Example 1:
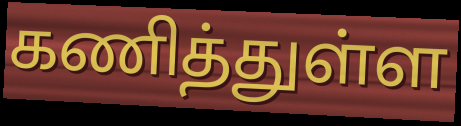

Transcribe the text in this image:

கணித்துள்ள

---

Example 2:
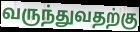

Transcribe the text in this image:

வருந்துவதற்கு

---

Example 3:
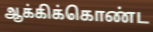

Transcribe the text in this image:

ஆக்கிக்கொண்ட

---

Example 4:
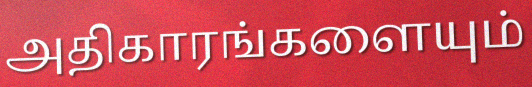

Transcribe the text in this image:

அதிகாரங்களையும்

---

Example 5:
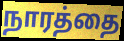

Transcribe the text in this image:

நாரத்தை